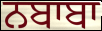
ਨਬਾਬਾ